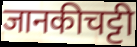
जानकीचट्टी